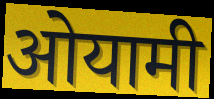
ओयामी